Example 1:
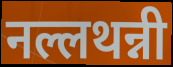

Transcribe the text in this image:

नल्लथन्नी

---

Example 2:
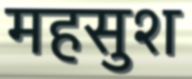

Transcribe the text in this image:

महसुश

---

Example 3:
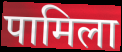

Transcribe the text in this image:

पामिला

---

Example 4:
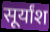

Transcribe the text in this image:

सूर्यांश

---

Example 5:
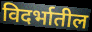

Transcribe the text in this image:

विदर्भातील